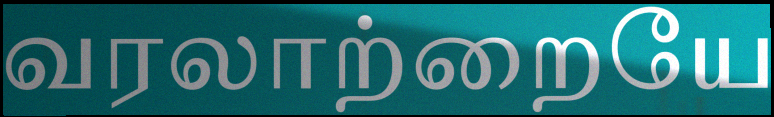
வரலாற்றையே